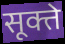
सूक्ते